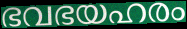
ഭവഭയഹരം